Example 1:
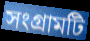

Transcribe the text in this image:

সংগ্রামটি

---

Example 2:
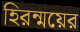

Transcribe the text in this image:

হিরন্ময়ের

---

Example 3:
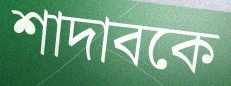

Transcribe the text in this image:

শাদাবকে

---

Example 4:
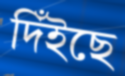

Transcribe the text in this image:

দিঁইছে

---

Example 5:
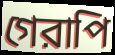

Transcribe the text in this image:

গেরাপি